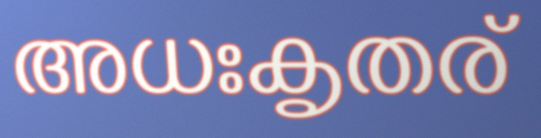
അധഃകൃതര്